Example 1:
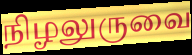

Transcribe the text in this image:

நிழலுருவை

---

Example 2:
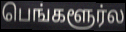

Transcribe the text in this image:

பெங்களூர்ல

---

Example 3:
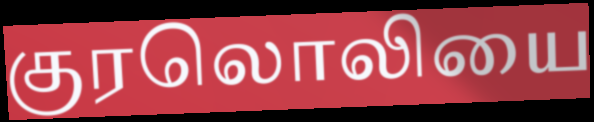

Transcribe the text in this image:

குரலொலியை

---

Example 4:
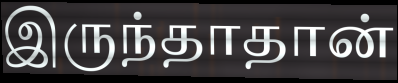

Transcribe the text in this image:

இருந்தாதான்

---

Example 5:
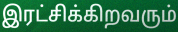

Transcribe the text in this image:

இரட்சிக்கிறவரும்